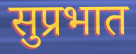
सुप्रभात